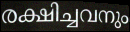
രക്ഷിച്ചവനും